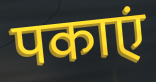
पकाएं